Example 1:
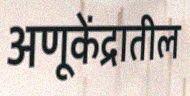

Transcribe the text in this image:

अणूकेंद्रातील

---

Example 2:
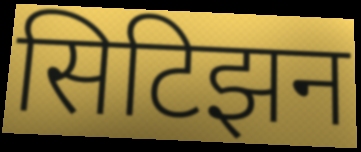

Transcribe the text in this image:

सिटिझन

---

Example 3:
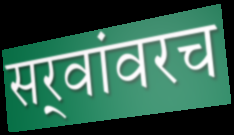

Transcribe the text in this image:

सर्वांवरच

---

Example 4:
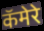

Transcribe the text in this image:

कॅमेरे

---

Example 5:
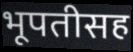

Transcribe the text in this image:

भूपतीसह